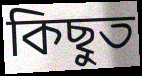
কিছুত